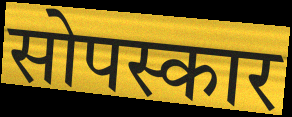
सोपस्कार